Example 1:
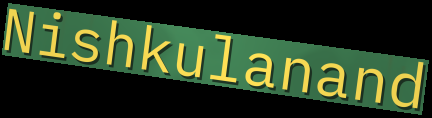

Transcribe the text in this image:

Nishkulanand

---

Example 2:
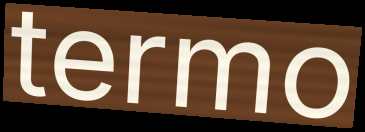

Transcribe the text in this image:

termo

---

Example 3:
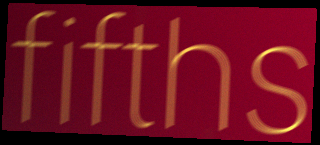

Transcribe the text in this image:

fifths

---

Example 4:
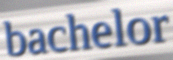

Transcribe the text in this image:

bachelor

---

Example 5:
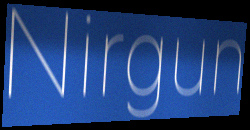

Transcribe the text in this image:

Nirgun